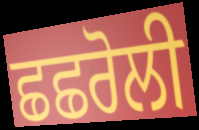
ਛਛਰੋਲੀ